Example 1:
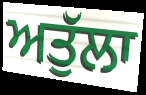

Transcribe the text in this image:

ਅਤੁੱਲਾ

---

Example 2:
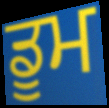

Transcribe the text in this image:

ਡੂਮ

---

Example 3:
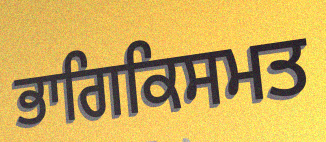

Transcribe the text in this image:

ਭਾਗਿਕਿਸਮਤ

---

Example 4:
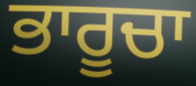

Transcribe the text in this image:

ਭਾਰੂਚਾ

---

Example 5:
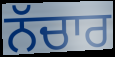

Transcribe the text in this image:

ਨੱਚਾਰ